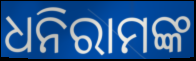
ଧନିରାମଙ୍କ